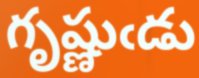
గృష్ణుఁడు